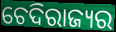
ଚେଦିରାଜ୍ୟର